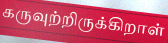
கருவுற்றிருக்கிறாள்